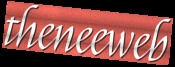
theneeweb